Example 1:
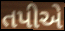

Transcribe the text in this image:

તપીએ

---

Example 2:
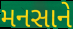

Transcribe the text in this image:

મનસાને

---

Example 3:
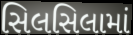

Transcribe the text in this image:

સિલસિલામાં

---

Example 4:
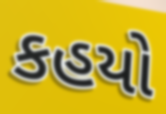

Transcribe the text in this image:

કહયો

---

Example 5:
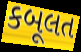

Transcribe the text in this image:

કબૂલત